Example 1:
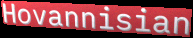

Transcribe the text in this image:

Hovannisian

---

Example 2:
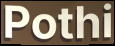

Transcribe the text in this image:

Pothi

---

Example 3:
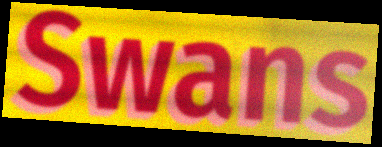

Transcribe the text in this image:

Swans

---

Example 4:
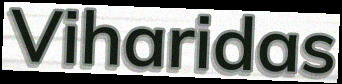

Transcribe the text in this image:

Viharidas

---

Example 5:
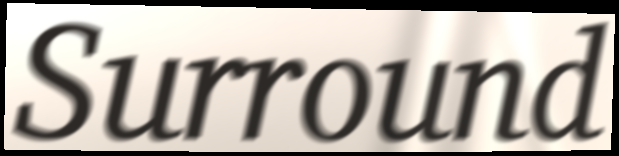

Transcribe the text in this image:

Surround